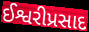
ઈશ્વરીપ્રસાદ